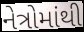
નેત્રોમાંથી